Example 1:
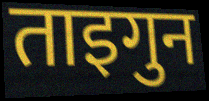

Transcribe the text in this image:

ताइगुन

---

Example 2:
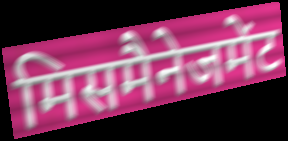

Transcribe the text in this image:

मिसमैनेजमेंट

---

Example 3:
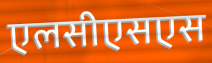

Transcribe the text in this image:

एलसीएसएस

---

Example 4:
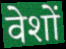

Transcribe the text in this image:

वेशों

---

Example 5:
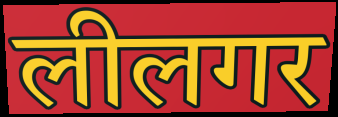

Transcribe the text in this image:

लीलगर